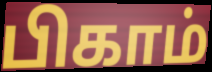
பிகாம்